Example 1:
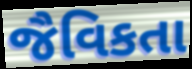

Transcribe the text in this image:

જૈવિકતા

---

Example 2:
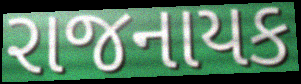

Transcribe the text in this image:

રાજનાયક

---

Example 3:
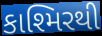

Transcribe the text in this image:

કાશ્મિરથી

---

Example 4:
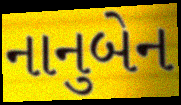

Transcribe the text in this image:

નાનુબેન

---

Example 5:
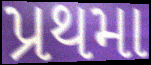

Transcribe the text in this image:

પ્રથમા